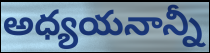
అధ్యయనాన్నీ